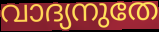
വാദ്യനുതേ